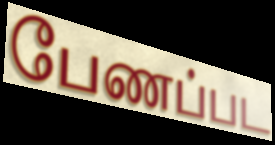
பேணப்பட